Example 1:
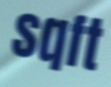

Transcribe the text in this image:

sqft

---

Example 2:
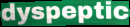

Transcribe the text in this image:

dyspeptic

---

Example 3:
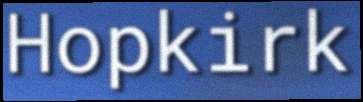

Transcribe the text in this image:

Hopkirk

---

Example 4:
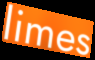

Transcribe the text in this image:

limes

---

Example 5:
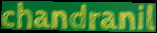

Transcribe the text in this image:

chandranil